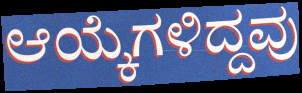
ಆಯ್ಕೆಗಳಿದ್ದವು